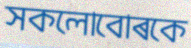
সকলোবোৰকে